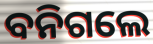
ବନିଗଲେ